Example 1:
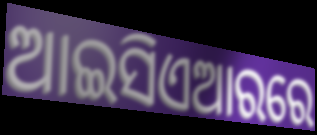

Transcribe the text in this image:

ଆଇସିଏଆରରେ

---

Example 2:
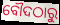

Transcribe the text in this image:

ବୌଦଠାରୁ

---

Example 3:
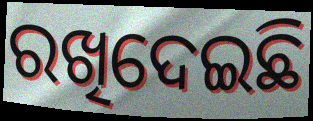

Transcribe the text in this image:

ରଖିଦେଇଛି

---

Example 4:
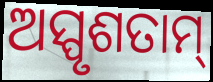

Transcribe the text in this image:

ଅସ୍ପୃଶତାମ୍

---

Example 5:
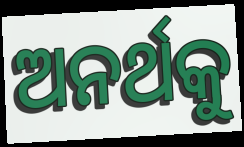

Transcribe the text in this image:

ଅନର୍ଥକୁ